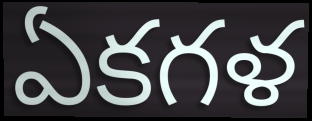
ఏకగళ